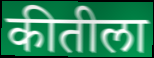
कीतीला